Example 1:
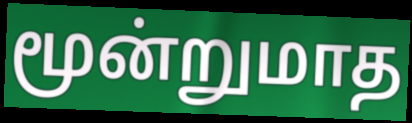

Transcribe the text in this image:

மூன்றுமாத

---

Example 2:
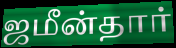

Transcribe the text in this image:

ஜமீன்தார்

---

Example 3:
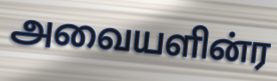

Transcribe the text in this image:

அவையளின்ர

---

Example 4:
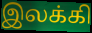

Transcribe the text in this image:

இலக்கி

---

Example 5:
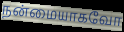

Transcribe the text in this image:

நன்மையாகவோ